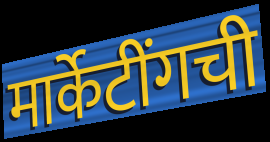
मार्केटींगची